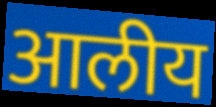
आलीय